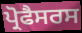
ਪ੍ਰੋਫੈਸਰਸ